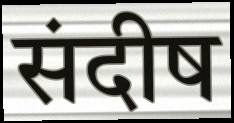
संदीष